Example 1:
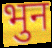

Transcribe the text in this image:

भुन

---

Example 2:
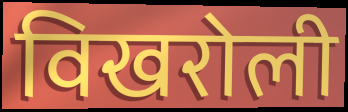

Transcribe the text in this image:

विखरोली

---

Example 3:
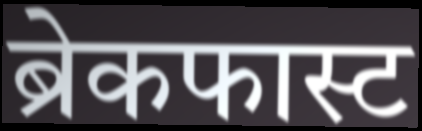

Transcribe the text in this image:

ब्रेकफास्ट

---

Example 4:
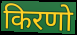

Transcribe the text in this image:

किरणो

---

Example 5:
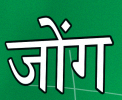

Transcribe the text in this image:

जोंग